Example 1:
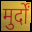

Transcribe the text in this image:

मुर्दों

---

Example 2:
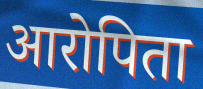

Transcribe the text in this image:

आरोपिता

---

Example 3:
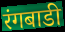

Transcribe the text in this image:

रंगबाडी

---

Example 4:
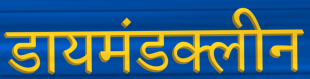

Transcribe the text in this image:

डायमंडक्लीन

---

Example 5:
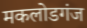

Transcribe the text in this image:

मकलोडगंज